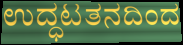
ಉದ್ಧಟತನದಿಂದ